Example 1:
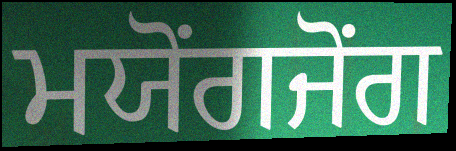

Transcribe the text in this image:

ਮਯੋਂਗਜੋਂਗ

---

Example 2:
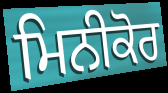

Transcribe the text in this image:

ਮਿਨੀਕੋਰ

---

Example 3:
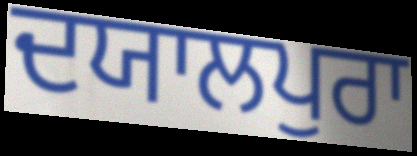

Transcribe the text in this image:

ਦਯਾਲਪੁਰਾ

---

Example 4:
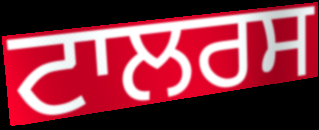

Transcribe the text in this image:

ਟਾਲਰਸ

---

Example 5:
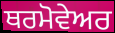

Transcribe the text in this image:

ਥਰਮੋਵੇਅਰ